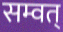
सम्वत्